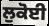
ਲੁਕੋਈ